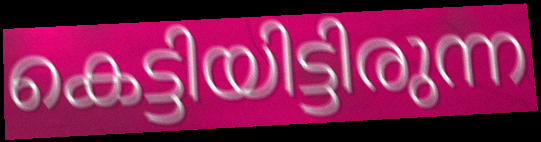
കെട്ടിയിട്ടിരുന്ന